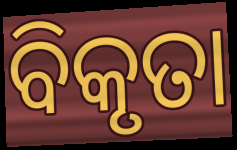
ବିକୃତା